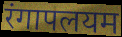
रंगापलयम